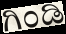
ಗಿಂಡಿ